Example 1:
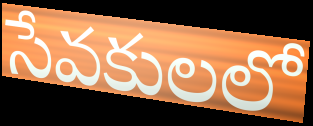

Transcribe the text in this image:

సేవకులలో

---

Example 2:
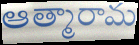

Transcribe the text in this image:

ఆత్మారామ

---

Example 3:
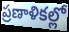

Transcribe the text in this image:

ప్రణాళికల్లో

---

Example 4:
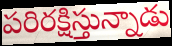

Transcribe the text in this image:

పరిరక్షిస్తున్నాడు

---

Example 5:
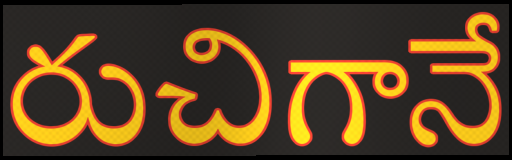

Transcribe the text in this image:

రుచిగానే